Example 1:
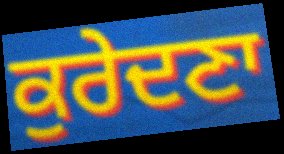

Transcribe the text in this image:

ਕੁਰੇਦਣਾ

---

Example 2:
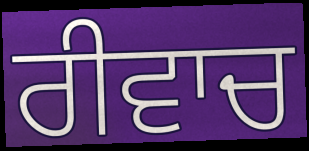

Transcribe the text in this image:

ਰੀਵਾਚ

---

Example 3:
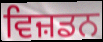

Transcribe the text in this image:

ਵਿਜ਼ਡਨ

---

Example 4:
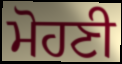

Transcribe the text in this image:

ਮੋਹਣੀ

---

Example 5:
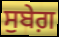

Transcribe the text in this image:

ਸੁਬੇਗ਼